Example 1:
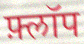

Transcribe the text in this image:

फ़्लॉप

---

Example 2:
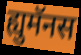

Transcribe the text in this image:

ह्युमॅनस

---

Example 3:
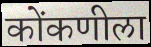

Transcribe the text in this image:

कोंकणीला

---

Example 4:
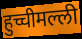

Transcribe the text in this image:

हुच्चीमल्ली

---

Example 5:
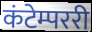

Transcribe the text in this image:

कंटेम्पररी